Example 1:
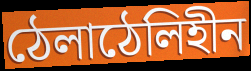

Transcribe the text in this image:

ঠেলাঠেলিহীন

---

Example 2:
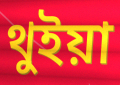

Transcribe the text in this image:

থুইয়া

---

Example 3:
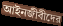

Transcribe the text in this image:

আইনজীবীদের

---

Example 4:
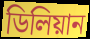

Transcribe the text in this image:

ডিলিয়ান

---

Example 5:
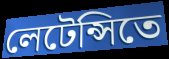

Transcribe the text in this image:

লেটেন্সিতে